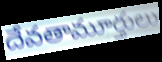
దేవతామూర్తులు